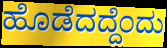
ಹೊಡೆದದ್ದೆಂದು